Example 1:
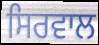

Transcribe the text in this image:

ਸਿਰਵਾਲ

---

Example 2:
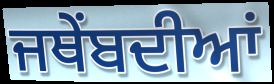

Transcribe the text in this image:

ਜਥੇਂਬਦੀਆਂ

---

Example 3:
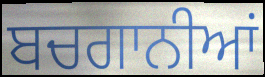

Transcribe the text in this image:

ਬਚਗਾਨੀਆਂ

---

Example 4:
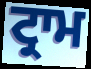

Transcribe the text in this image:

ਟ੍ਰਾਮ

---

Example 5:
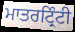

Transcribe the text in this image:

ਮਾਤਰਟ੍ਰਿੰਟੀ